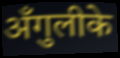
अँगुलीके